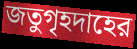
জতুগৃহদাহের